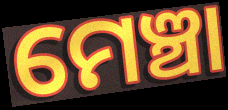
ମେଞ୍ଚା